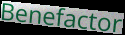
Benefactor